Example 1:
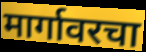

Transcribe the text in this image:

मार्गावरचा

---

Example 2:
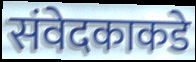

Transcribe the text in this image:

संवेदकाकडे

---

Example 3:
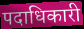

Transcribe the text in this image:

पदाधिकारी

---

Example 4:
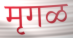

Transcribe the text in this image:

मृगळ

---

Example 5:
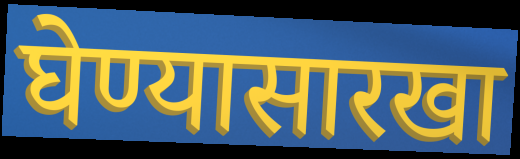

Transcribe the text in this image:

घेण्यासारखा